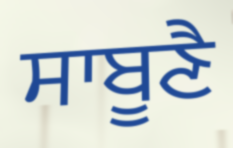
ਸਾਬੂਣੈ